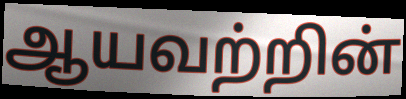
ஆயவற்றின்